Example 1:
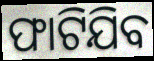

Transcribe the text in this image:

ଫାଟିଯିବ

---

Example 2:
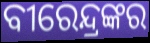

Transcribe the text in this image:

ବୀରେନ୍ଦ୍ରଙ୍କର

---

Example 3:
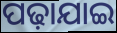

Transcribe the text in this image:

ପଢ଼ାଯାଇ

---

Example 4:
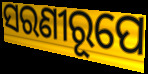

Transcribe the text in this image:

ସରଣୀରୂପେ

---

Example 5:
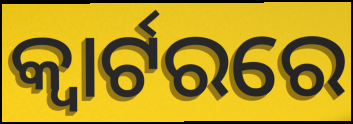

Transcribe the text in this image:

କ୍ବାର୍ଟରରେ